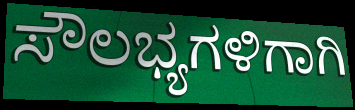
ಸೌಲಭ್ಯಗಳಿಗಾಗಿ